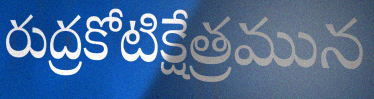
రుద్రకోటిక్షేత్రమున